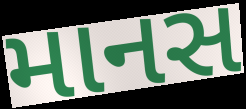
માનસ